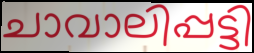
ചാവാലിപ്പട്ടി